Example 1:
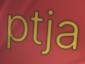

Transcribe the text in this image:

ptja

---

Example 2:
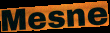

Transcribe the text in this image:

Mesne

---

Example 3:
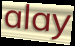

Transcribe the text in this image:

alay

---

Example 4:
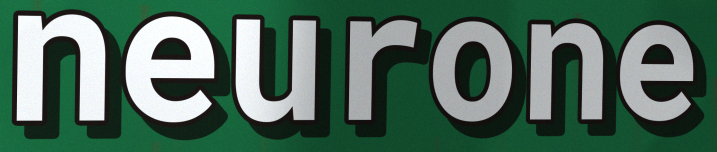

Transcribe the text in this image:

neurone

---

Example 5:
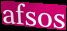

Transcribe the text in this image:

afsos